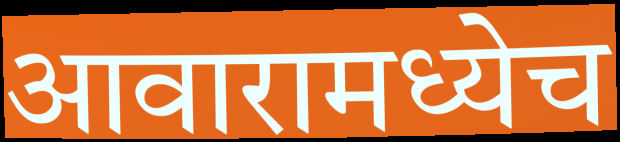
आवारामध्येच